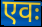
एवः